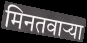
मिनतवार्‍या